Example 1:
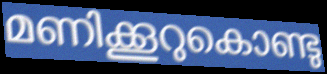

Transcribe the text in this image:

മണിക്കൂറുകൊണ്ടു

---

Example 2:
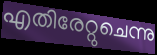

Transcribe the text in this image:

എതിരേറ്റുചെന്നു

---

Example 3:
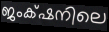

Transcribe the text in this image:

ജംക്‌ഷനിലെ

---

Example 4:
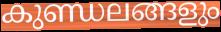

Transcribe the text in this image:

കുണ്ഡലങ്ങളും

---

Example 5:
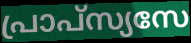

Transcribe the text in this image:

പ്രാപ്സ്യസേ